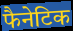
फैनेटिक